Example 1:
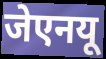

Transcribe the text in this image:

जेएनयू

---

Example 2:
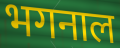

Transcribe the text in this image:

भगनाल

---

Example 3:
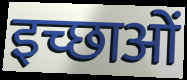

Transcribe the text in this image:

इच्छाओं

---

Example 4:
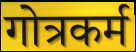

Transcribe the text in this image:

गोत्रकर्म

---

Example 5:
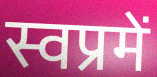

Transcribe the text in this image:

स्वप्रमें